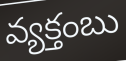
వ్యక్తంబు